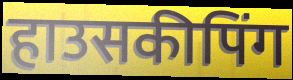
हाउसकीपिंग